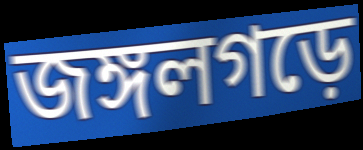
জঙ্গলগড়ে